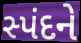
સ્પંદને